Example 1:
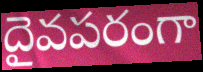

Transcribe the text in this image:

దైవపరంగా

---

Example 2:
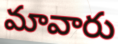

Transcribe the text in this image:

మావారు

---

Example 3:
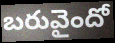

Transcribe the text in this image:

బరువైందో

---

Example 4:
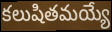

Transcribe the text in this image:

కలుషితమయ్యే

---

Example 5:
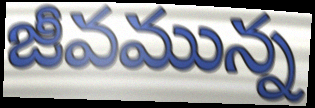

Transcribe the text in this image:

జీవమున్న